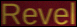
Revel